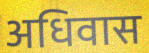
अधिवास